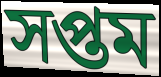
সপ্তম